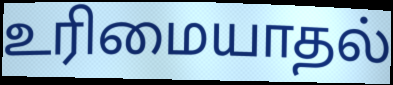
உரிமையாதல்